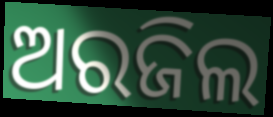
ଅରଜିଲ